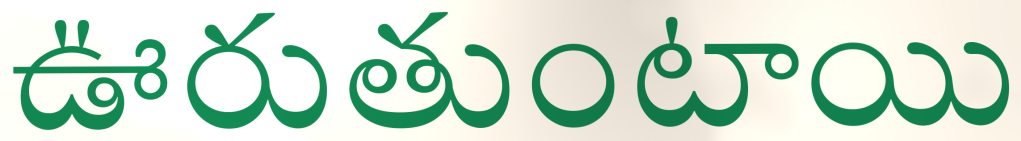
ఊరుతుంటాయి